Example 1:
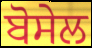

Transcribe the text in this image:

ਬੋਸੇਲ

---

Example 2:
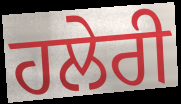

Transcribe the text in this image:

ਹਲੇਰੀ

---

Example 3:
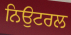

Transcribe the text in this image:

ਨਿਉਟਰਲ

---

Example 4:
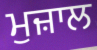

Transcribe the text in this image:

ਮੁਜ਼ਾਲ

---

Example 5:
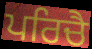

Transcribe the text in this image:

ਪਰਿਚੈ